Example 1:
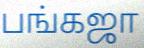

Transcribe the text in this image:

பங்கஜா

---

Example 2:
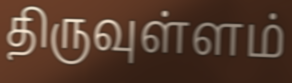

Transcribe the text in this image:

திருவுள்ளம்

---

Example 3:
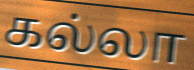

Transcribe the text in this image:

கல்லா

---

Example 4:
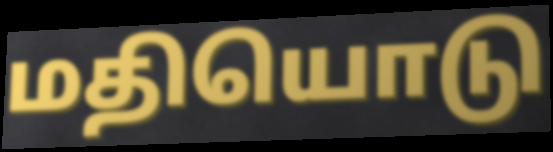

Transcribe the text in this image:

மதியொடு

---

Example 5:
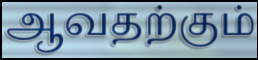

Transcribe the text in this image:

ஆவதற்கும்